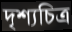
দৃশ্যচিত্র